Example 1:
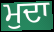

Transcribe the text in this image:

ਮੁਦਾ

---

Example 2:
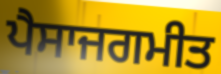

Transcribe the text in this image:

ਪੈਸਾਜਗਮੀਤ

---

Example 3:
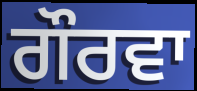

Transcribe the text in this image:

ਗੌਰਵਾ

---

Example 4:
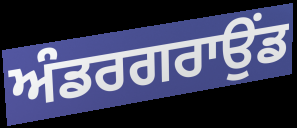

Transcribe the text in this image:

ਅੰਡਰਗਰਾਉਂਡ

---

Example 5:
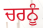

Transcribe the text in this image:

ਚਰਨੂੰ